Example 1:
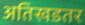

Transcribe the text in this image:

अतिखडतर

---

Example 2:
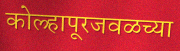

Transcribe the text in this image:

कोल्हापूरजवळच्या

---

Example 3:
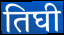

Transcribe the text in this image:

तिघी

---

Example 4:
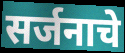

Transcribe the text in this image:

सर्जनाचे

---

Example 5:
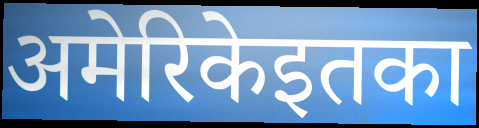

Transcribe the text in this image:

अमेरिकेइतका